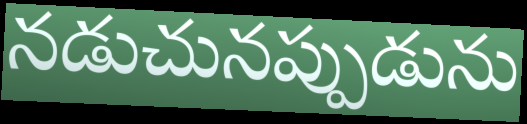
నడుచునప్పుడును